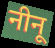
नीनू